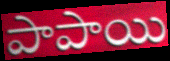
పాపాయి